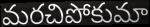
మరచిపోకుమా